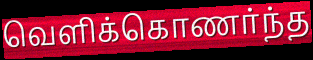
வெளிக்கொணர்ந்த